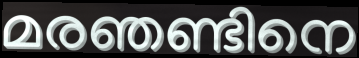
മരഞണ്ടിനെ